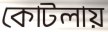
কোটলায়